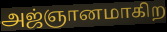
அஜ்ஞானமாகிற